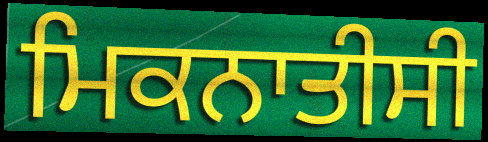
ਮਿਕਨਾਤੀਸੀ